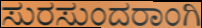
ಸುರಸುಂದರಾಂಗಿ